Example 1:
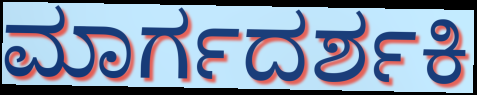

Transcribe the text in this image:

ಮಾರ್ಗದರ್ಶಕಿ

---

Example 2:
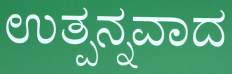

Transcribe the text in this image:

ಉತ್ಪನ್ನವಾದ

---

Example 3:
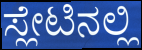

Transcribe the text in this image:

ಸ್ಲೇಟಿನಲ್ಲಿ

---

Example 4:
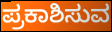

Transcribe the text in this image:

ಪ್ರಕಾಶಿಸುವ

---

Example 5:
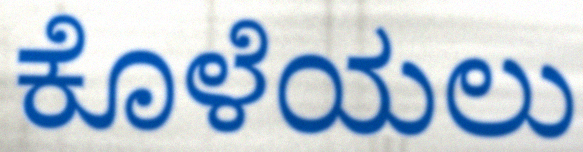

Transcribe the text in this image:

ಕೊಳೆಯಲು